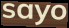
sayo